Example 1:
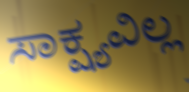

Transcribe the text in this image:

ಸಾಕ್ಷ್ಯವಿಲ್ಲ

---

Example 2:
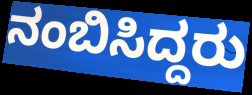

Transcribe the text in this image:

ನಂಬಿಸಿದ್ದರು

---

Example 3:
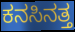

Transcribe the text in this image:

ಕನಸಿನತ್ತ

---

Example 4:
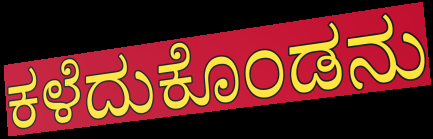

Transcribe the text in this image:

ಕಳೆದುಕೊಂಡನು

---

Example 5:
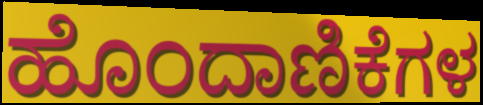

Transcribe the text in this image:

ಹೊಂದಾಣಿಕೆಗಳ